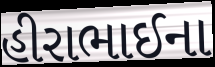
હીરાભાઈના